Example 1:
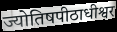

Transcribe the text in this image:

ज्योतिषपीठाधीश्वर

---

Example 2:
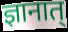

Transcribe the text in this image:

ज्ञानात्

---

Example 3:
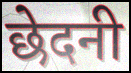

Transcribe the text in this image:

छेदनी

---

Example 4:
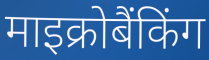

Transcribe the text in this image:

माइक्रोबैंकिंग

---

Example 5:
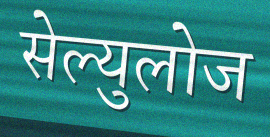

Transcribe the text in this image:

सेल्युलोज